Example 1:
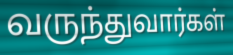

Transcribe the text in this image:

வருந்துவார்கள்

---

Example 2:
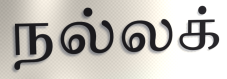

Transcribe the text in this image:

நல்லக்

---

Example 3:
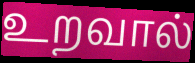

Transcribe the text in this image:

உறவால்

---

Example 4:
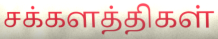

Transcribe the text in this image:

சக்களத்திகள்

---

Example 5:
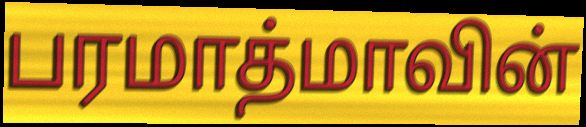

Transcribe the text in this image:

பரமாத்மாவின்